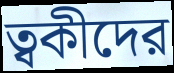
ত্বকীদের